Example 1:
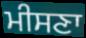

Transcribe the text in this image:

ਮੀਸਣਾ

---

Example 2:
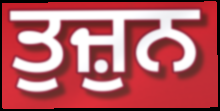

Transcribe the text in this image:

ਤੁਜ਼ੁਨ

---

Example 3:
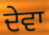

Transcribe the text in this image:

ਦੇਵਾ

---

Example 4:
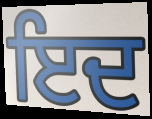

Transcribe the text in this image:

ਇਦ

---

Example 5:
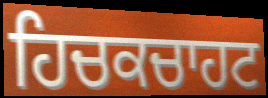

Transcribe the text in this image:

ਹਿਚਕਚਾਹਟ